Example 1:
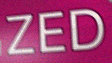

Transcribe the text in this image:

ZED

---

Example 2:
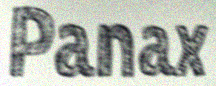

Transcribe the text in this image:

Panax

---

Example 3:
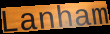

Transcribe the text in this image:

Lanham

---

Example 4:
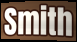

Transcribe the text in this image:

Smith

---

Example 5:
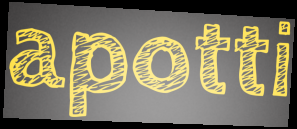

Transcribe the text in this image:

apotti